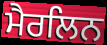
ਮੈਰਲਿਨ